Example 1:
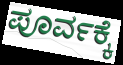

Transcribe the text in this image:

ಪೂರ್ವಕ್ಕೆ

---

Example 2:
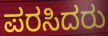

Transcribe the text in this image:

ಪರಸಿದರು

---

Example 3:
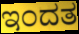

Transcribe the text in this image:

ಇಂದತ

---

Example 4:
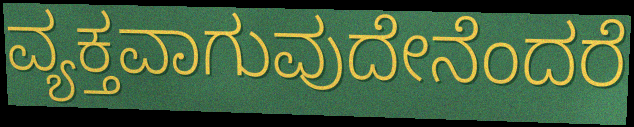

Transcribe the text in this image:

ವ್ಯಕ್ತವಾಗುವುದೇನೆಂದರೆ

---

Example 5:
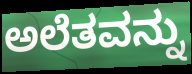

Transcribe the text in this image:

ಅಲೆತವನ್ನು